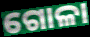
ଗୋଳା